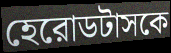
হেরোডটাসকে